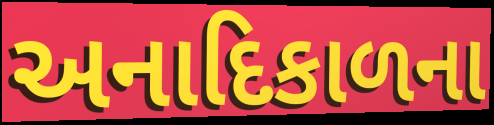
અનાદિકાળના